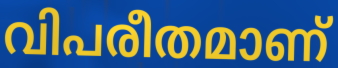
വിപരീതമാണ്